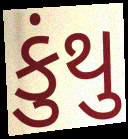
કુંથુ